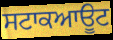
ਸਟਾਕਆਊਟ